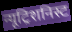
न्‍यूट्रिशनिस्‍ट